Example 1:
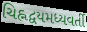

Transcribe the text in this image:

ચિહ્નદ્વયમધ્યવર્તી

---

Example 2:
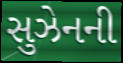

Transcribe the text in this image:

સુઝેનની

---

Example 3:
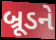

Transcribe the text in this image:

બ્રૂડને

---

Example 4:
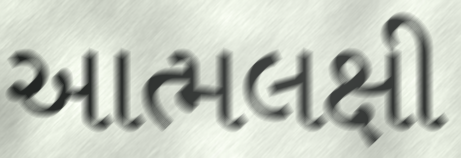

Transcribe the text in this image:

આત્મલક્ષી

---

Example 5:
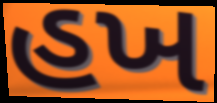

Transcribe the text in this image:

હખ